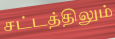
சட்டத்திலும்